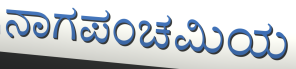
ನಾಗಪಂಚಮಿಯ